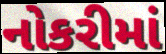
નોકરીમાં